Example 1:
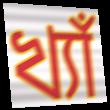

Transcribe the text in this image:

খ্যাঁ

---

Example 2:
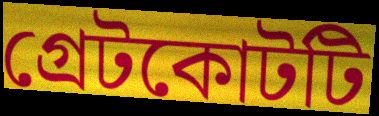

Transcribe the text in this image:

গ্রেটকোটটি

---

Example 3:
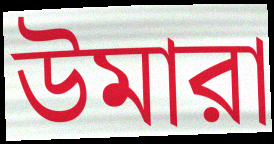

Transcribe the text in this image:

উমারা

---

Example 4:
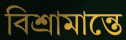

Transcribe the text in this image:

বিশ্রামান্তে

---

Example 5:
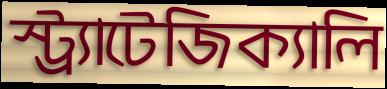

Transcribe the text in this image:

স্ট্র্যাটেজিক্যালি